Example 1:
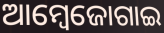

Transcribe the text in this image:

ଆମ୍ବେଜୋଗାଇ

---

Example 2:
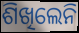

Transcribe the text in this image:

ଶିଖିଲେନି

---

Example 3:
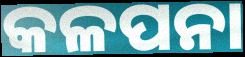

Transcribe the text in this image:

କଳପନା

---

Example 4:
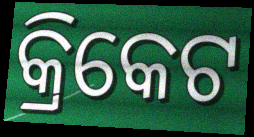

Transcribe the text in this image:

କ୍ରିକେଟ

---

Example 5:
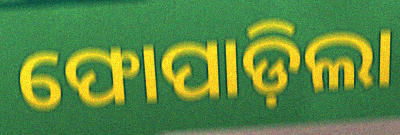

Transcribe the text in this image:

ଫୋପାଡ଼ିଲା